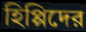
হিপ্পিদের